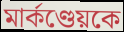
মার্কণ্ডেয়কে